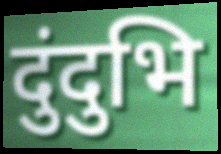
दुंदुभि